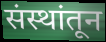
संस्थांतून